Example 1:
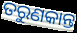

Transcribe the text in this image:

ତରୁଣକାନ୍ତ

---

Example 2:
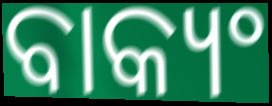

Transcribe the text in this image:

ବାକ୍ୟଂ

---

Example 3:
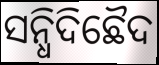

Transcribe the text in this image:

ସନ୍ଧିଦିଛୈଦ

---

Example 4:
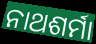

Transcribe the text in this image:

ନାଥଶର୍ମା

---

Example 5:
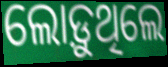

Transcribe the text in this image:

ଲୋଡ଼ୁଥିଲେ